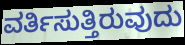
ವರ್ತಿಸುತ್ತಿರುವುದು